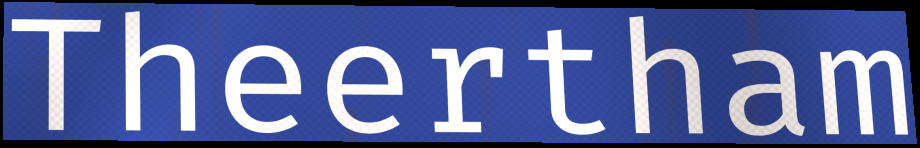
Theertham